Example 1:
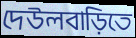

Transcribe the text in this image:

দেউলবাড়িতে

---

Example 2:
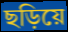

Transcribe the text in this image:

ছড়িয়ে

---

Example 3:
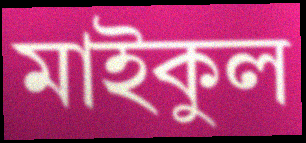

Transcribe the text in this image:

মাইকুল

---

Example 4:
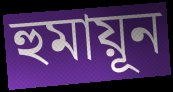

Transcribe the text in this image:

হুমায়ূন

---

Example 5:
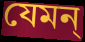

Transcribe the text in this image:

যেমন্